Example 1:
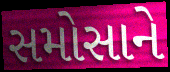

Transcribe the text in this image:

સમોસાને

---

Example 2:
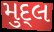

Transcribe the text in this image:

મુદ્લ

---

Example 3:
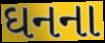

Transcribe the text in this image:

ઘનના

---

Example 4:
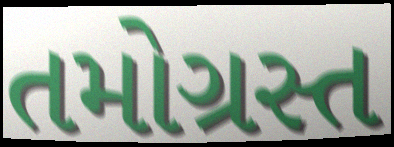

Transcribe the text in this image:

તમોગ્રસ્ત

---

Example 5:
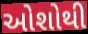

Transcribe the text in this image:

ઓશોથી